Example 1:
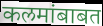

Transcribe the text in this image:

कलमांबाबत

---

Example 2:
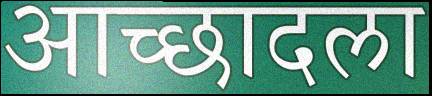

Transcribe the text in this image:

आच्छादला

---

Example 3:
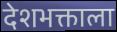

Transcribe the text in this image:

देशभक्ताला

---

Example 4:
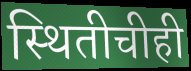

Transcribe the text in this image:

स्थितीचीही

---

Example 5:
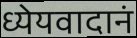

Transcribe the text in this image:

ध्येयवादानं